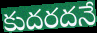
కుదరదనే